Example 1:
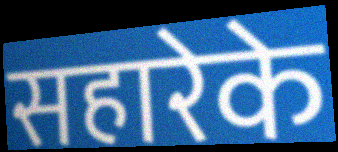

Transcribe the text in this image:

सहारेके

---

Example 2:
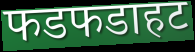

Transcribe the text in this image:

फडफडाहट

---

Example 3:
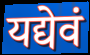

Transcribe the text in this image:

यद्येवं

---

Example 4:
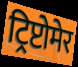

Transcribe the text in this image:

ट्रिप्टोमेर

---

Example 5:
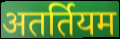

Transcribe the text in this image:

अतर्तियम